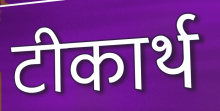
टीकार्थ